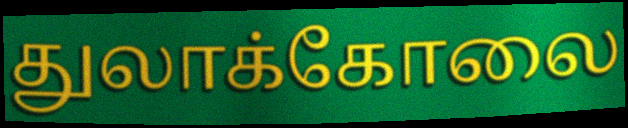
துலாக்கோலை